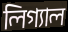
লিগ্যাল